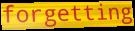
forgetting